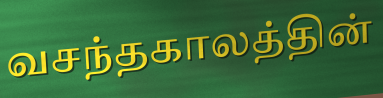
வசந்தகாலத்தின்